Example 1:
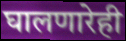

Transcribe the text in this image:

घालणारेही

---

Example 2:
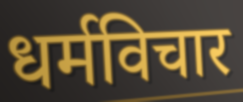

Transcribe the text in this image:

धर्मविचार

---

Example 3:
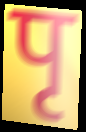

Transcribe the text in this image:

पृ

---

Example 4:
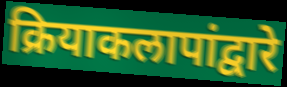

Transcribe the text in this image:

क्रियाकलापांद्वारे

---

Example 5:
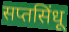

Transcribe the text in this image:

सप्तसिंधू